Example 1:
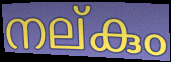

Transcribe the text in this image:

നല്‌കും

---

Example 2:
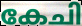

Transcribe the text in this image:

കേചി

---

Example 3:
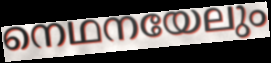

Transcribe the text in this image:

നെഥനയേലും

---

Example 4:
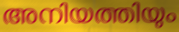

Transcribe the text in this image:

അനിയത്തിയും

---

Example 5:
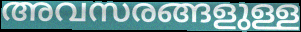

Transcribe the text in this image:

അവസരങ്ങളുള്ള